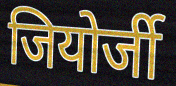
जियोर्जी